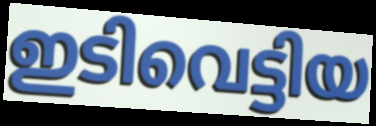
ഇടിവെട്ടിയ